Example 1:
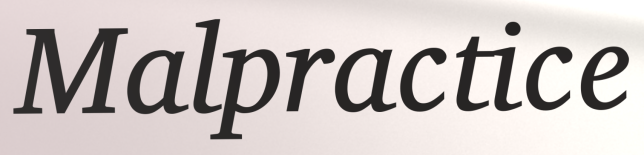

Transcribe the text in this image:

Malpractice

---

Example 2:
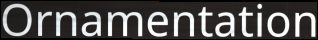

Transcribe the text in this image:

Ornamentation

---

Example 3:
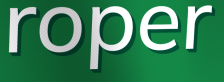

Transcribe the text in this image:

roper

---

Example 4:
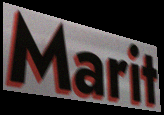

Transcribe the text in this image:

Marit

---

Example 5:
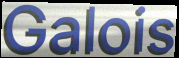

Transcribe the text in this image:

Galois